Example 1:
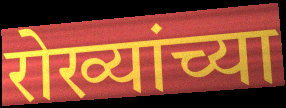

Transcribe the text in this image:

रोख्यांच्या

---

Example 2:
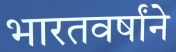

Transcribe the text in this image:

भारतवर्षांने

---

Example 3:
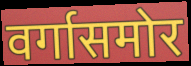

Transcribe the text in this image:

वर्गासमोर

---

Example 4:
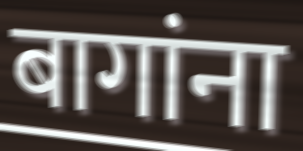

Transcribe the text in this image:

बागांना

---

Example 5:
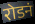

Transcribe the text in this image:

रोडनं